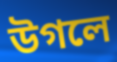
উগলে